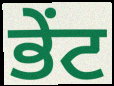
ਭੇਂਟ